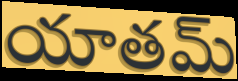
యాతమ్